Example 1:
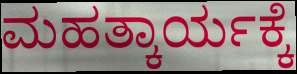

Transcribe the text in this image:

ಮಹತ್ಕಾರ್ಯಕ್ಕೆ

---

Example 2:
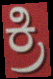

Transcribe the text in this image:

ಕ್ರಿ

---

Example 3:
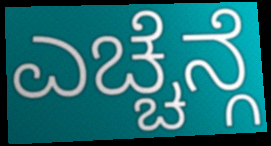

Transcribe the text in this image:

ಎಚ್ಚೆನ್ಗೆ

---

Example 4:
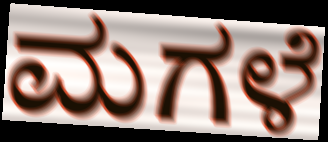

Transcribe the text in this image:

ಮಗಳೆ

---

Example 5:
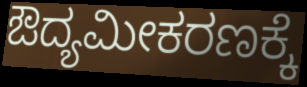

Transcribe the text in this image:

ಔದ್ಯಮೀಕರಣಕ್ಕೆ